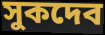
সুকদেব